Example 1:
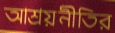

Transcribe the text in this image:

আশ্রয়নীতির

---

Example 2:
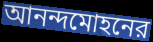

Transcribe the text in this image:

আনন্দমোহনের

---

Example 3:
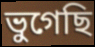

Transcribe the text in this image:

ভুগেছি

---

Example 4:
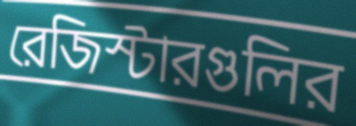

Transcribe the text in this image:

রেজিস্টারগুলির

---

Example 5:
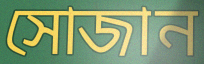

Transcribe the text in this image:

সোজান